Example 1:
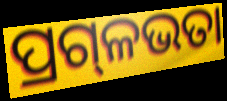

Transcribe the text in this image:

ପ୍ରଗ୍‍ଳଭତା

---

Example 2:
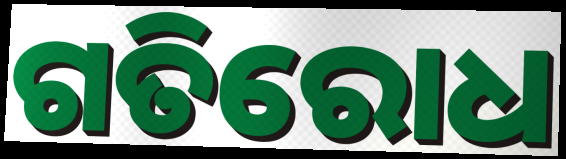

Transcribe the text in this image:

ଗତିରୋଧ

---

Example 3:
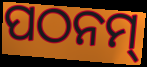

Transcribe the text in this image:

ପଠନମ୍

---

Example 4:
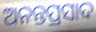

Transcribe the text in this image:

ଅନନ୍ତପ୍ରସାଦ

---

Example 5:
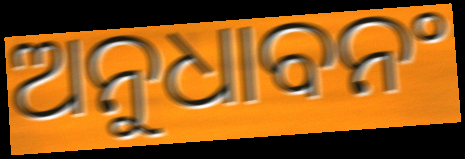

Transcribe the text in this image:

ଅନୁଧାବନଂ